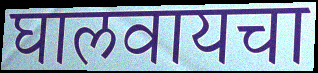
घालवायचा